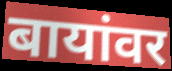
बायांवर